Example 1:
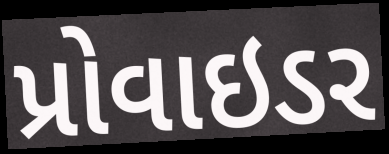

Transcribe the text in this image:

પ્રોવાઇડર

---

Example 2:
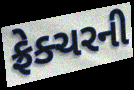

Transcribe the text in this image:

ફ્રેક્ચરની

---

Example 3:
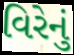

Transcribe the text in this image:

વિરેનું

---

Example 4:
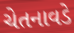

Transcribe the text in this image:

ચેતનાવડે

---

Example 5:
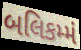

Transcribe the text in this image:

બલિકમ્મં